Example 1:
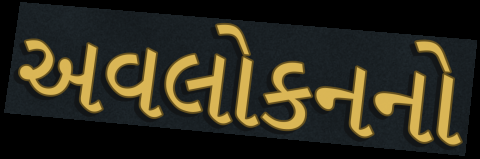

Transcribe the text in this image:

અવલોકનનો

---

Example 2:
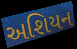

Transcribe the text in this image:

અશિયન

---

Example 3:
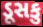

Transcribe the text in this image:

ડૂસકુ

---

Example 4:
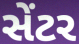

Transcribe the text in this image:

સેંટર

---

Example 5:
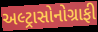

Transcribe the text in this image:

અલ્ટ્રાસોનોગ્રાફી